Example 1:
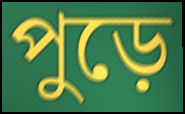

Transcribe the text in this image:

পুড়ে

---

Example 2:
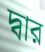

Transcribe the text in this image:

দ্বার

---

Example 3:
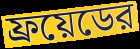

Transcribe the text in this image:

ফ্রয়েডের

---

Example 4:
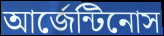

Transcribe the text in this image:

আর্জেন্টিনোস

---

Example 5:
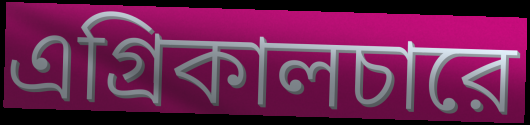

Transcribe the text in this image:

এগ্রিকালচারে